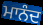
ਮਾਨੰਦ